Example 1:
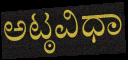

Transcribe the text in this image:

ಅಟ್ಠವಿಧಾ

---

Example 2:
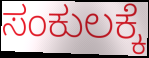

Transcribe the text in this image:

ಸಂಕುಲಕ್ಕೆ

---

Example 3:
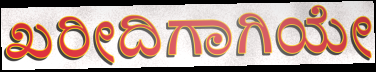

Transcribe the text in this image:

ಖರೀದಿಗಾಗಿಯೇ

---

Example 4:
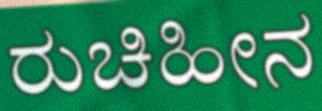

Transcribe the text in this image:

ರುಚಿಹೀನ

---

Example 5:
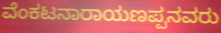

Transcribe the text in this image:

ವೆಂಕಟನಾರಾಯಣಪ್ಪನವರು